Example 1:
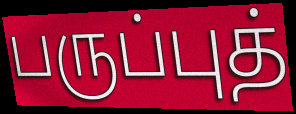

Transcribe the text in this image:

பருப்புத்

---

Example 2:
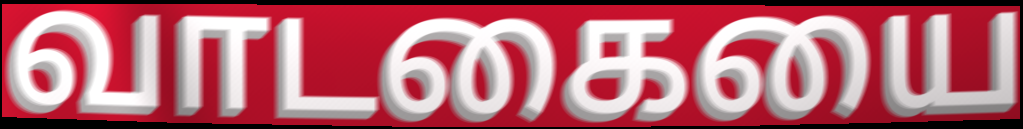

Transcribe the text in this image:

வாடகையை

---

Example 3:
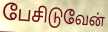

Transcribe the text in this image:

பேசிடுவேன்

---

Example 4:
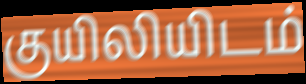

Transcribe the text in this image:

குயிலியிடம்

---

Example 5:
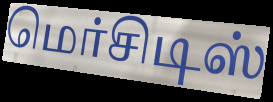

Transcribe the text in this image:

மெர்சிடிஸ்